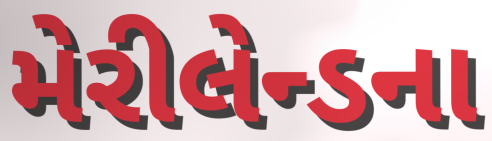
મેરીલેન્ડના